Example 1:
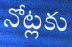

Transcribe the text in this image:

నోట్లకు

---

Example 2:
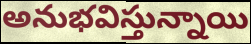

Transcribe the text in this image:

అనుభవిస్తున్నాయి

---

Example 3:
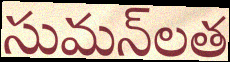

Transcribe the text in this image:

సుమన్‌లత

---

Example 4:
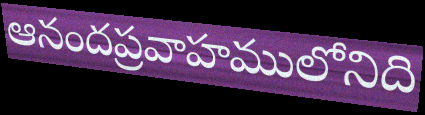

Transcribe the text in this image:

ఆనందప్రవాహములోనిది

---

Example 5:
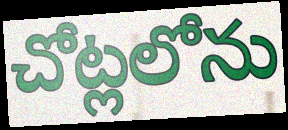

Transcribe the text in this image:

చోట్లలోను